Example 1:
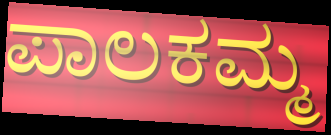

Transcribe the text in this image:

ಪಾಲಕಮ್ಮ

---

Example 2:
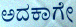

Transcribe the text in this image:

ಅದಕಾಗೇ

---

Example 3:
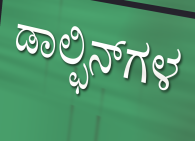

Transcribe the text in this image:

ಡಾಲ್ಫಿನ್‌ಗಳ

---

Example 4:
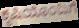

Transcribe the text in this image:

ಕೃಷಿಯೊಂದಿಗೆ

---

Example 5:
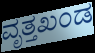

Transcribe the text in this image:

ವೃತ್ತಖಂಡ